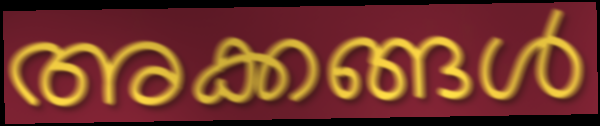
അക്കങ്ങൾ